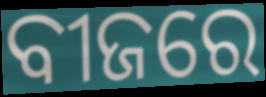
ବୀଜରେ